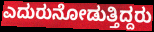
ಎದುರುನೋಡುತ್ತಿದ್ದರು